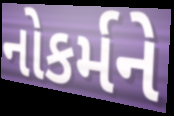
નોકર્મને